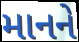
માનને